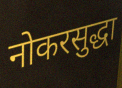
नोकरसुद्धा